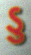
ડુ